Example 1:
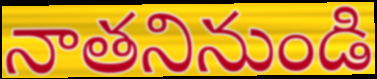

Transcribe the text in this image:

నాతనినుండి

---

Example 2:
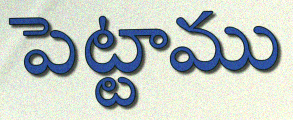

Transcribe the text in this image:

పెట్టాము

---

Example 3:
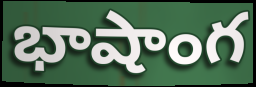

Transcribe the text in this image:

భాషాంగ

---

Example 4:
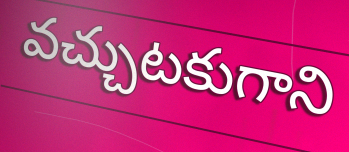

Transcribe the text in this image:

వచ్చుటకుగాని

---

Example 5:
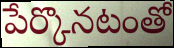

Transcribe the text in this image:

పేర్కొనటంతో